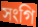
সংগি